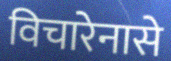
विचारेनासे